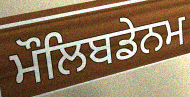
ਮੌਲਿਬਡੇਨਮ